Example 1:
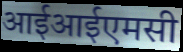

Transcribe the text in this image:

आईआईएमसी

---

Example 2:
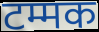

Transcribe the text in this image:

टम्मक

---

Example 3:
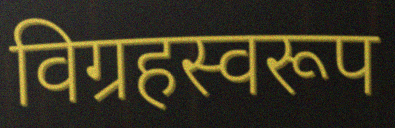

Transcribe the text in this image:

विग्रहस्वरूप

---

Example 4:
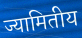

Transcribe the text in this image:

ज्यामितीय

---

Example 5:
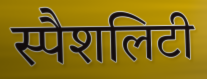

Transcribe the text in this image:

स्पैशलिटी